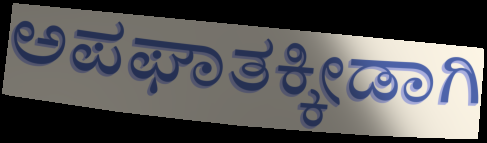
ಅಪಘಾತಕ್ಕೀಡಾಗಿ